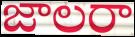
జాలరా